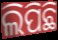
ଲିପିଛି